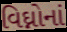
વિઘ્નોનાં